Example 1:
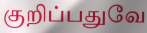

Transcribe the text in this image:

குறிப்பதுவே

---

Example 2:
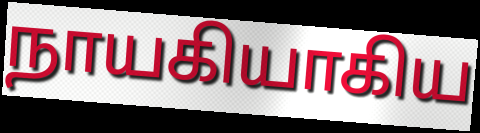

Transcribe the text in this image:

நாயகியாகிய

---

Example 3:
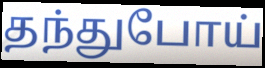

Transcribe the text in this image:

தந்துபோய்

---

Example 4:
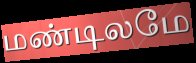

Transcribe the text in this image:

மண்டிலமே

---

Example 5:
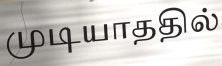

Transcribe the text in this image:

முடியாததில்